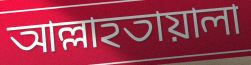
আল্লাহতায়ালা